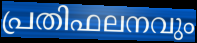
പ്രതിഫലനവും